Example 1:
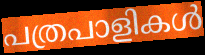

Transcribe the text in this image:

പത്രപാളികൾ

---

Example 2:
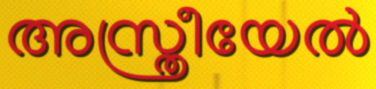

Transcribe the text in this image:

അസ്ത്രീയേൽ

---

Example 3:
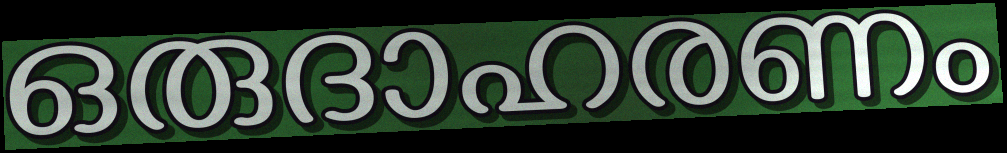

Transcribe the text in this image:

ഒരുദാഹരണം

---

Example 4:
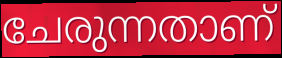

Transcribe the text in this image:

ചേരുന്നതാണ്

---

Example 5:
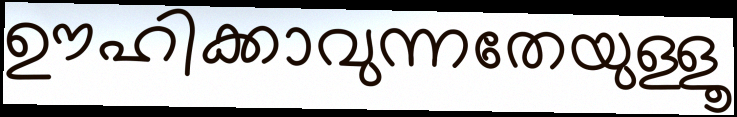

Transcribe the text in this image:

ഊഹിക്കാവുന്നതേയുള്ളൂ